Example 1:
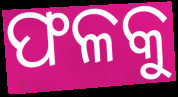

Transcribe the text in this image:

ଫଳକୁ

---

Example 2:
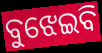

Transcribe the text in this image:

ବୁଝେଇବି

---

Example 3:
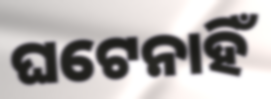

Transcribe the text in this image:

ଘଟେନାହିଁ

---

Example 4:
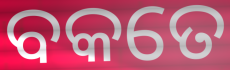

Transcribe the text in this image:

ବକତେ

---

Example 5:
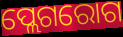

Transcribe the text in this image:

ପ୍ଲେଗରୋଗ